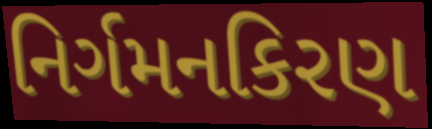
નિર્ગમનકિરણ